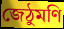
জেঠুমণি